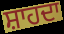
ਸ਼ਾਹਦਾ